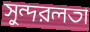
সুন্দরলতা